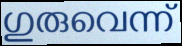
ഗുരുവെന്ന്